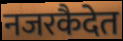
नजरकैदेत